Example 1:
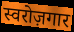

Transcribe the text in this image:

स्वरोज़गार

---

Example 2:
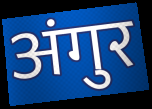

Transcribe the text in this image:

अंगुर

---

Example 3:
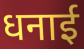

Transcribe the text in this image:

धनाई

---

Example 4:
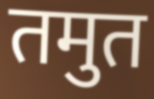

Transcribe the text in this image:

तमुत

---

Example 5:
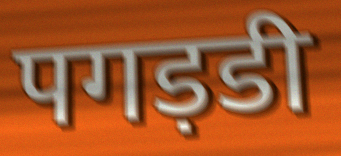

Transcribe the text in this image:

पगड़डी